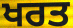
ਖਰਤ